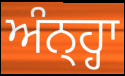
ਅੰਨ੍ਹ੍ਹਾ